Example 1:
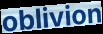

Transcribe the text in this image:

oblivion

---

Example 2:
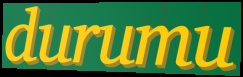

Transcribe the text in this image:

durumu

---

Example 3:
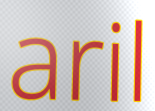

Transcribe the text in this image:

aril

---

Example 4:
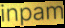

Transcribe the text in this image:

inpam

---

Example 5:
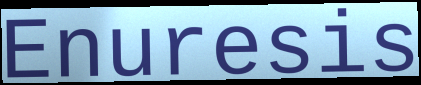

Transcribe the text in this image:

Enuresis